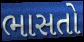
ભાસતો